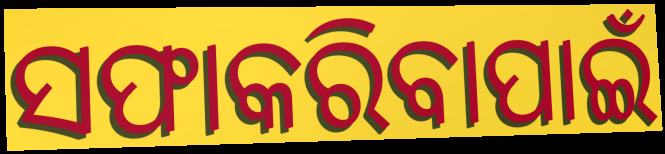
ସଫାକରିବାପାଇଁ